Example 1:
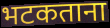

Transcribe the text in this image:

भटकताना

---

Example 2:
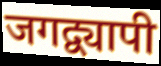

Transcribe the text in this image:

जगद्व्यापी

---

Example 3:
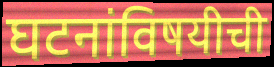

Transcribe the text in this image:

घटनांविषयीची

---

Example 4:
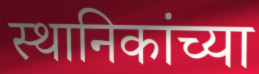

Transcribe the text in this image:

स्थानिकांच्या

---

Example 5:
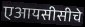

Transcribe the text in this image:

एआयसीसीचे